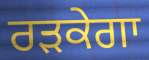
ਰੜਕੇਗਾ